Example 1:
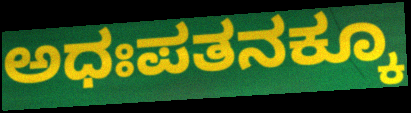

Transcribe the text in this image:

ಅಧಃಪತನಕ್ಕೂ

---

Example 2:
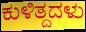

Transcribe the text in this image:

ಕುಳಿತ್ದದಳು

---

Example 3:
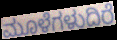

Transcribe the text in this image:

ಮೂಳೆಗಳುದಿರೆ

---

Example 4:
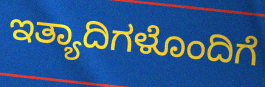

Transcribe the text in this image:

ಇತ್ಯಾದಿಗಳೊಂದಿಗೆ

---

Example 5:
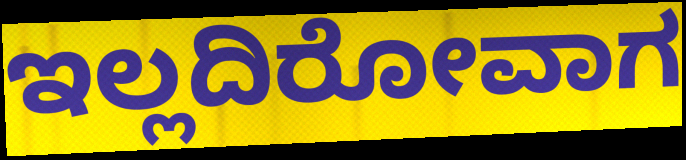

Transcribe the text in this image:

ಇಲ್ಲದಿರೋವಾಗ